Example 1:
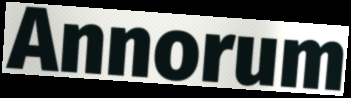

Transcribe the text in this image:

Annorum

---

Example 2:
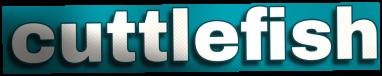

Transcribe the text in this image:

cuttlefish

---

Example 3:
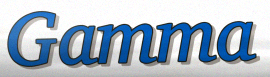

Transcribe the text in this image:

Gamma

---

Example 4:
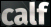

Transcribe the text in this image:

calf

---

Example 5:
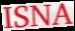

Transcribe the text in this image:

ISNA